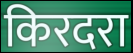
किरदरा